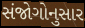
સંજોગોનુસાર